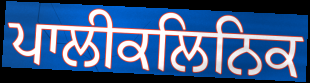
ਪਾਲੀਕਲਿਨਿਕ